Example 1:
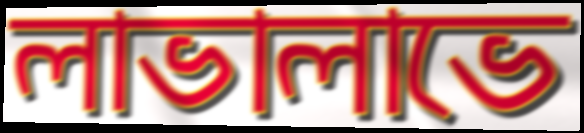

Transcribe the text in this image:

লাভালাভে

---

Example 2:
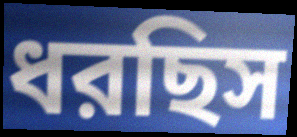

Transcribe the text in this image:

ধরছিস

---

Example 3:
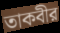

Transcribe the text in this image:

তাকবীর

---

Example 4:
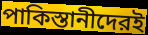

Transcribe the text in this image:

পাকিস্তানীদেরই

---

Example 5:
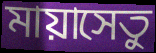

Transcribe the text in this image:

মায়াসেতু